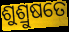
ଶୁଶ୍ରୁଷତେ